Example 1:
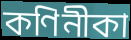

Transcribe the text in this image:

কণিনীকা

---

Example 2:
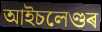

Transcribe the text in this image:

আইচলেণ্ডৰ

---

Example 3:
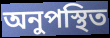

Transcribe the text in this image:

অনুপস্থিত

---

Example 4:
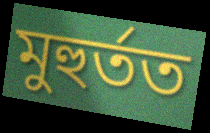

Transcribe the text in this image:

মুহুৰ্তত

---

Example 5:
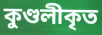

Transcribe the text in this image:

কুণ্ডলীকৃত